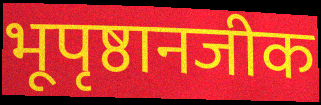
भूपृष्ठानजीक